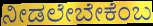
ನೀಡಲೇಬೇಕೆಂಬ